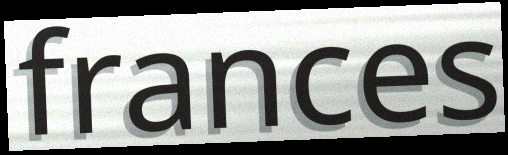
frances